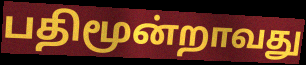
பதிமூன்றாவது